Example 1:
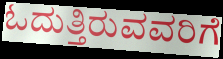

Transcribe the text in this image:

ಓದುತ್ತಿರುವವರಿಗೆ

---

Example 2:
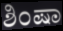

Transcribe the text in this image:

ಶಿಂಷಾ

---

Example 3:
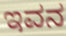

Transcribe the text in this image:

ಇವನ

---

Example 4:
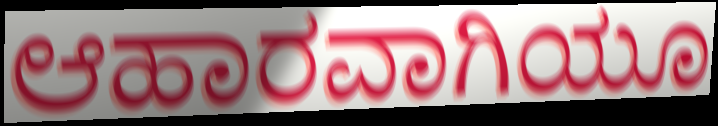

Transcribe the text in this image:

ಆಹಾರವಾಗಿಯೂ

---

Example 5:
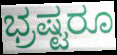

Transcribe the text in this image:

ಭ್ರಷ್ಟರೂ